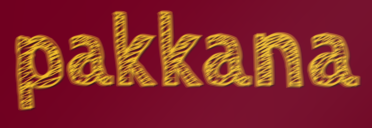
pakkana